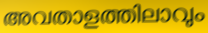
അവതാളത്തിലാവും